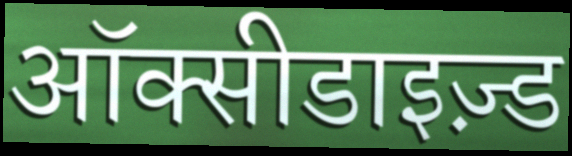
ऑक्सीडाइज़्ड